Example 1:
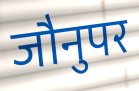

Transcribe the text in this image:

जौनुपर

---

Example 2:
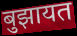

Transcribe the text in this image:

बुझायत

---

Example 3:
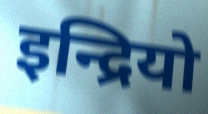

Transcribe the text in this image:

इन्द्रियो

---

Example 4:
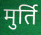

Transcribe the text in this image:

मुर्ति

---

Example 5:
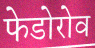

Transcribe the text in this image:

फेडोरोव